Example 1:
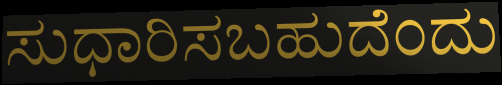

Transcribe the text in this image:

ಸುಧಾರಿಸಬಹುದೆಂದು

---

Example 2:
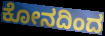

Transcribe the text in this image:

ಕೋನದಿಂದ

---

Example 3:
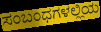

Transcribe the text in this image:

ಸಂಬಂಧಗಳಲ್ಲಿಯ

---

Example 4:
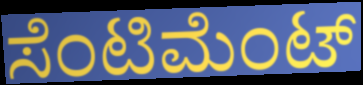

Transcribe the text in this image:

ಸೆಂಟಿಮೆಂಟ್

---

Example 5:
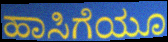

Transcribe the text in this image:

ಹಾಸಿಗೆಯೂ